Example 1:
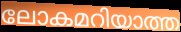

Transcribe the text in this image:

ലോകമറിയാത്ത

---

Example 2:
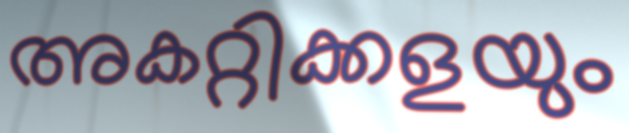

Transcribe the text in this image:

അകറ്റിക്കളയും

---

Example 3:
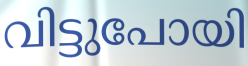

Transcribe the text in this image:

വിട്ടുപോയി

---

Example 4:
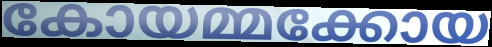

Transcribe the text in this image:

കോയമ്മക്കോയ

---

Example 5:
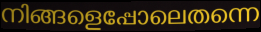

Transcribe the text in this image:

നിങ്ങളെപ്പോലെതന്നെ